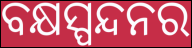
ବକ୍ଷସ୍ପନ୍ଦନର